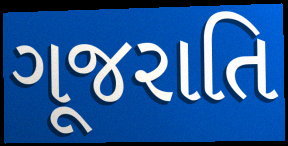
ગૂજરાતિ